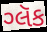
ગ્લૅક